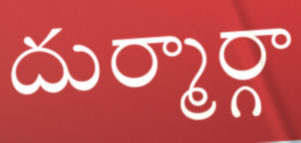
దుర్మార్గా